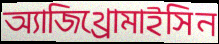
অ্যাজিথ্রোমাইসিন